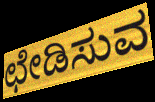
ಛೇಡಿಸುವ